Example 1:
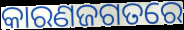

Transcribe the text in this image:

କାରଣଜଗତରେ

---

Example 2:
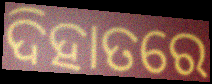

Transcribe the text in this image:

ଦିହାତରେ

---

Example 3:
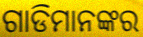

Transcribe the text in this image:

ଗାଡିମାନଙ୍କର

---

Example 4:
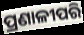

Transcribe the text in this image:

ପ୍ରଣାଳୀପରି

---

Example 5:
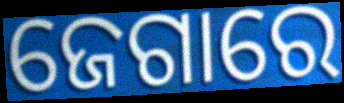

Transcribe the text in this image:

ଜେଗାରେ